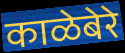
काळेबेरे